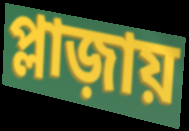
প্লাজ়ায়